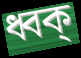
ধ্বক্